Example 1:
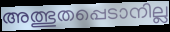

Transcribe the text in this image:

അത്ഭുതപ്പെടാനില്ല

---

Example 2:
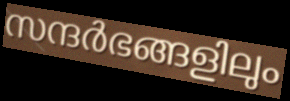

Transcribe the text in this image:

സന്ദർഭങ്ങളിലും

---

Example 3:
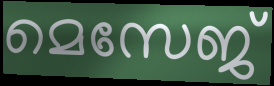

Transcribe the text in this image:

മെസേജ്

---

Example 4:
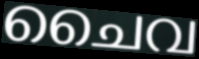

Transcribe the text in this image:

ചൈവ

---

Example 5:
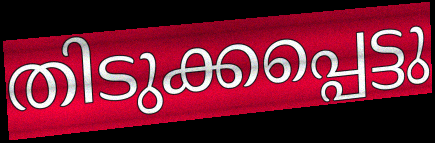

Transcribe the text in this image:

തിടുക്കപ്പെട്ടു